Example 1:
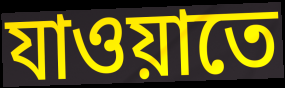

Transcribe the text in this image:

যাওয়াতে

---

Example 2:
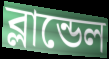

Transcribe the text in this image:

ব্লান্ডেল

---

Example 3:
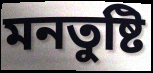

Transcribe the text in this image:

মনতুষ্টি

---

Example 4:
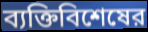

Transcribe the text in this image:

ব্যক্তিবিশেষের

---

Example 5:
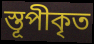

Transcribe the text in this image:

স্তূপীকৃত